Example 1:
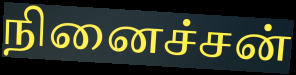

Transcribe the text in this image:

நினைச்சன்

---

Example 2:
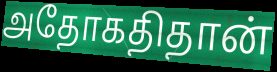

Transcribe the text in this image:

அதோகதிதான்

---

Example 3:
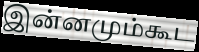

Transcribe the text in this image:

இன்னமும்கூட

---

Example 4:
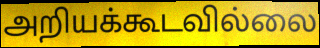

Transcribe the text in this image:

அறியக்கூடவில்லை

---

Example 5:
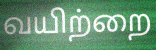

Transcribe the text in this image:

வயிற்றை